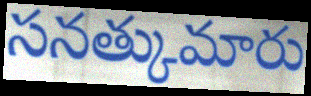
సనత్కుమారు